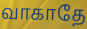
வாகாதே